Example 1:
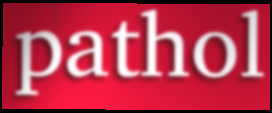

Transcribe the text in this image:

pathol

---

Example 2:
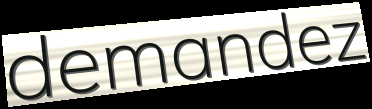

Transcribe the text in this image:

demandez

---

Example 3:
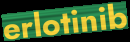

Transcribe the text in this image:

erlotinib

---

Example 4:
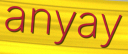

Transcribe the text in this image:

anyay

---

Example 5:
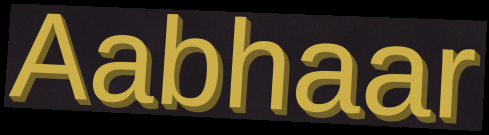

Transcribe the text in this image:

Aabhaar